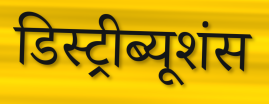
डिस्ट्रीब्यूशंस